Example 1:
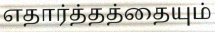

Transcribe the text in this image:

எதார்த்தத்தையும்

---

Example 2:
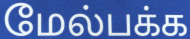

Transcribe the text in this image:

மேல்பக்க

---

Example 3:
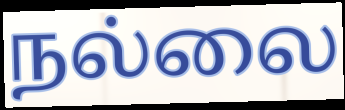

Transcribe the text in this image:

நல்லை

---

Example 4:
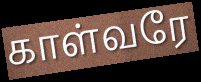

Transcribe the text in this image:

காள்வரே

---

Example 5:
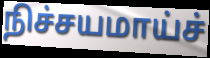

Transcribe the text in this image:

நிச்சயமாய்ச்